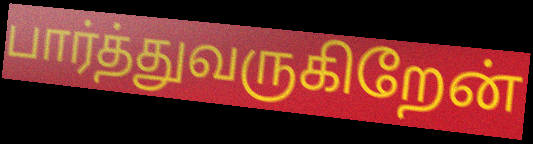
பார்த்துவருகிறேன்